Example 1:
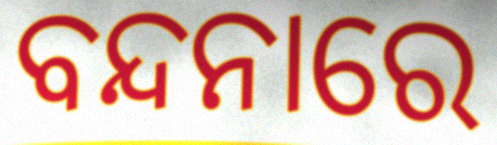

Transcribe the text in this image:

ବନ୍ଦନାରେ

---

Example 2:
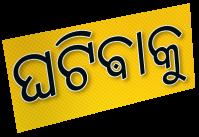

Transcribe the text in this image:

ଘଟିଵାକୁ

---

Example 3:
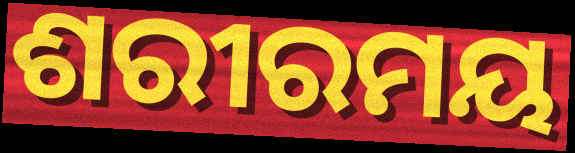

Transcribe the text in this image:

ଶରୀରମୟ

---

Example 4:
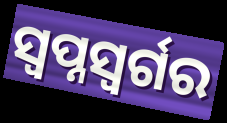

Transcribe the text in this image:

ସ୍ୱପ୍ନସ୍ୱର୍ଗର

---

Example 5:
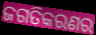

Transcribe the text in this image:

ଜଗତିକରଣର